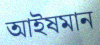
আইষমান